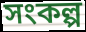
সংকল্প